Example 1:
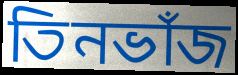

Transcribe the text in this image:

তিনভাঁজ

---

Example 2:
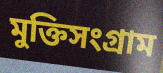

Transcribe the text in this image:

মুক্তিসংগ্রাম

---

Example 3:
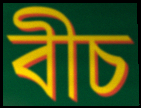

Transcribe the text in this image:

বীচ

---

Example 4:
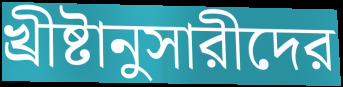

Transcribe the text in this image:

খ্রীষ্টানুসারীদের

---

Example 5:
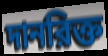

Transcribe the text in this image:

দানরিক্ত